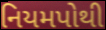
નિયમપોથી